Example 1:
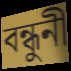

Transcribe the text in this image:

বন্ধুনী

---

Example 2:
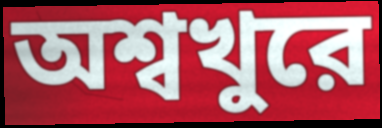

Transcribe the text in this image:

অশ্বখুরে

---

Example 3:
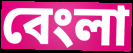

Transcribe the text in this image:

বেংলা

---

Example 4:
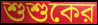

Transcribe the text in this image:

শুশুকের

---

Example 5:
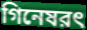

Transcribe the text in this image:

গিনেষরৎ